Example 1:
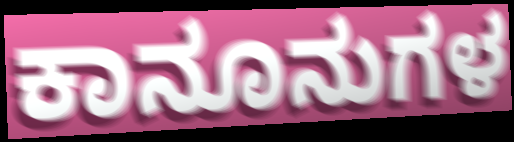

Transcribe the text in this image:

ಕಾನೂನುಗಳ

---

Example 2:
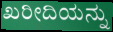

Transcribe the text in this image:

ಖರೀದಿಯನ್ನು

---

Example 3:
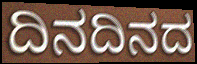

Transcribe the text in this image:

ದಿನದಿನದ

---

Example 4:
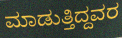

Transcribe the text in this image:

ಮಾಡುತ್ತಿದ್ದವರ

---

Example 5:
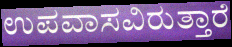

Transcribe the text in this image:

ಉಪವಾಸವಿರುತ್ತಾರೆ